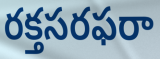
రక్తసరఫరా